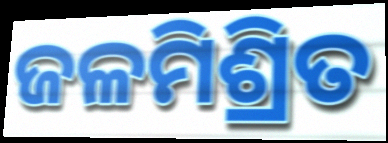
ଜଳମିଶ୍ରିତ